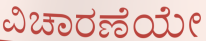
ವಿಚಾರಣೆಯೇ